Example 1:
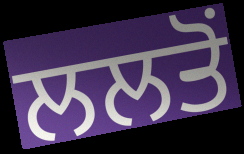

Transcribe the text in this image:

ਲਲਤੋਂ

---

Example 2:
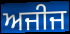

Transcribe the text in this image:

ਅਜੀਜ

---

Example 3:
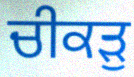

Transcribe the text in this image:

ਚੀਕੜੁ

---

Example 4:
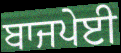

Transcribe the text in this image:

ਬਾਜਪੇਈ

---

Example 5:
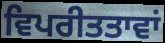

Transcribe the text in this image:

ਵਿਪਰੀਤਤਾਵਾਂ